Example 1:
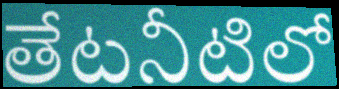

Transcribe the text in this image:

తేటనీటిలో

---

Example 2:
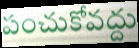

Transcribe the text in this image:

పంచుకోవద్దు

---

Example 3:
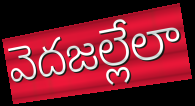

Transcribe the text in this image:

వెదజల్లేలా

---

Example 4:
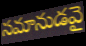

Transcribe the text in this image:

సమానుడవై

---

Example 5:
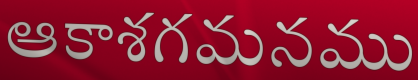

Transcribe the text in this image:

ఆకాశగమనము